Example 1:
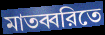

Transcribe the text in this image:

মাতব্বরিতে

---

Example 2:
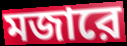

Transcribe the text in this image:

মজারে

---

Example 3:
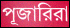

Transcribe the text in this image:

পূজারিরা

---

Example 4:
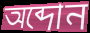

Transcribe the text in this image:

অব্দোন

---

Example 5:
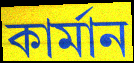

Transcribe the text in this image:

কার্মান